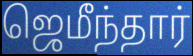
ஜெமீந்தார்